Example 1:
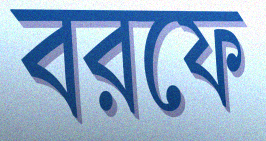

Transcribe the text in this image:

বরফে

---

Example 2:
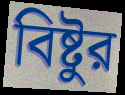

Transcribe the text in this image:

বিষ্টুর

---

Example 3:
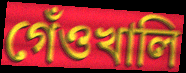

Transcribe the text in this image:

গেঁওখালি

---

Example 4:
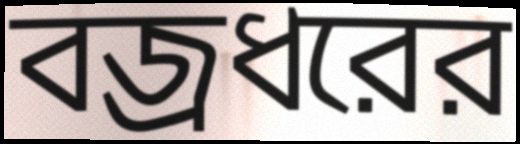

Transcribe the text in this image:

বজ্রধরের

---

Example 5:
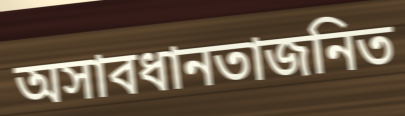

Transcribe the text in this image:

অসাবধানতাজনিত